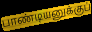
பாண்டியனுக்குப்